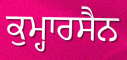
ਕੁਮ੍ਹਾਰਸੈਨ